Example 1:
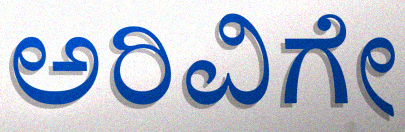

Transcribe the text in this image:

ಅರಿವಿಗೇ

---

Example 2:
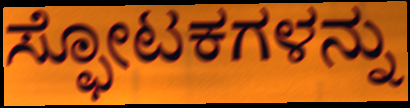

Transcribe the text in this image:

ಸ್ಫೋಟಕಗಳನ್ನು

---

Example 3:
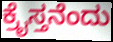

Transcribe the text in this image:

ಕ್ರೈಸ್ತನೆಂದು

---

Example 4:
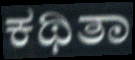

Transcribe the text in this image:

ಕಥಿತಾ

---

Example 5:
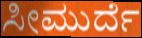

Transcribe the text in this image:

ಸೀಮುರ್ದೆ